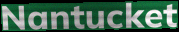
Nantucket